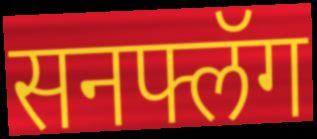
सनफ्लॅग